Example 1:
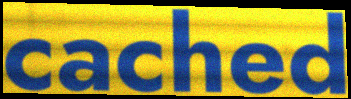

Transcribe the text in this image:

cached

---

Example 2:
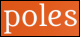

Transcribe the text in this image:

poles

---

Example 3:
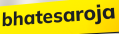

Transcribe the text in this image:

bhatesaroja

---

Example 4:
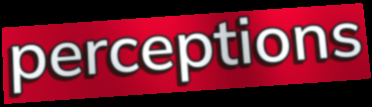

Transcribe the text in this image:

perceptions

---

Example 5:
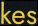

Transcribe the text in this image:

kes